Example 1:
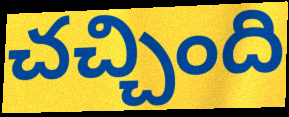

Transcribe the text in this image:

చచ్చింది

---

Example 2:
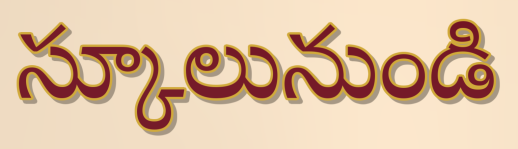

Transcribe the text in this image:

స్కూలునుండి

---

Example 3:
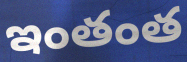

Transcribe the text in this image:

ఇంతంత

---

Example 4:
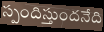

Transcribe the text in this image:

స్పందిస్తుందనేది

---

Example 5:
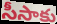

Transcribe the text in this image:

సీసాకు